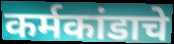
कर्मकांडाचे